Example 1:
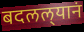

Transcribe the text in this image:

बदलल्यानं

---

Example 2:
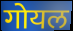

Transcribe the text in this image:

गोयल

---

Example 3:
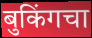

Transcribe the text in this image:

बुकिंगचा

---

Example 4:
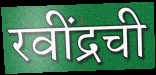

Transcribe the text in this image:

रवींद्रची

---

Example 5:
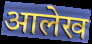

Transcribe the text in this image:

आलेख